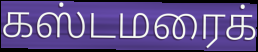
கஸ்டமரைக்